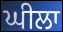
ਘੀਲਾ